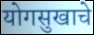
योगसुखाचे